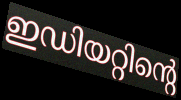
ഇഡിയറ്റിന്റെ